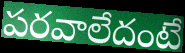
పరవాలేదంటే